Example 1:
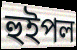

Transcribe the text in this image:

হুইপল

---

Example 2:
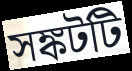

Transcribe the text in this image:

সঙ্কটটি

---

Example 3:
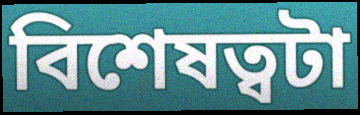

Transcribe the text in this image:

বিশেষত্বটা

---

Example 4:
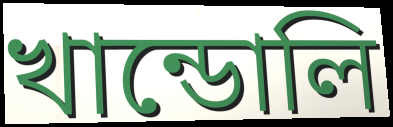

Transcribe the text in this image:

খান্ডোলি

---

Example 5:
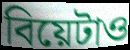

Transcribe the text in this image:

বিয়েটাও